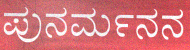
ಪುನರ್ಮನನ